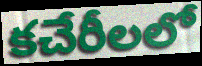
కచేరీలలో